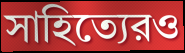
সাহিত্যেরও